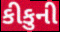
કીકુની